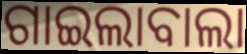
ଗାଇଲାବାଲା